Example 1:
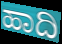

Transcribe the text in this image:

ಹಾದಿ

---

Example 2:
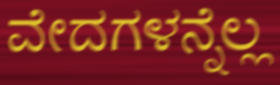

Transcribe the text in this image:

ವೇದಗಳನ್ನೆಲ್ಲ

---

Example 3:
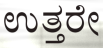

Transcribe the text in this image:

ಉತ್ತರೇ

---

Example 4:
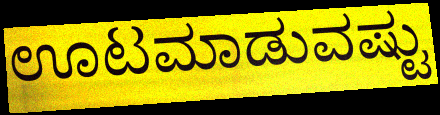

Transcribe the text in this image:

ಊಟಮಾಡುವಷ್ಟು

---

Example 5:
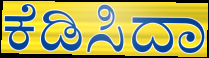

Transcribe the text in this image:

ಕೆಡಿಸಿದಾ